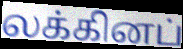
லக்கினப்